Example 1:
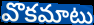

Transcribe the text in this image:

వొకమాటు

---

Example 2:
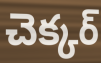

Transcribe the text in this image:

చెక్కర్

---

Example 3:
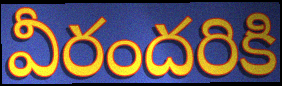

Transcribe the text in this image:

వీరందరికి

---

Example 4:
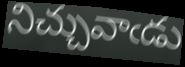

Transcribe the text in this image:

నిచ్చువాఁడు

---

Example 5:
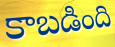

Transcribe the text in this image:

కాబడింది